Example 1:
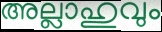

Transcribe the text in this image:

അല്ലാഹുവും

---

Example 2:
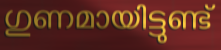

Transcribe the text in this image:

ഗുണമായിട്ടുണ്ട്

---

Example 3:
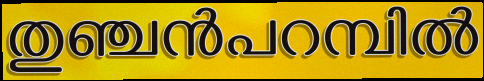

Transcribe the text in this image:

തുഞ്ചൻപറമ്പിൽ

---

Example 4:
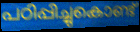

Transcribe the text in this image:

പഠിപ്പിച്ചുകൊണ്ട്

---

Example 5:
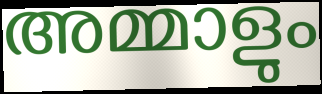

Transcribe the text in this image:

അമ്മാളും